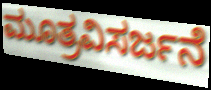
ಮೂತ್ರವಿಸರ್ಜನೆ